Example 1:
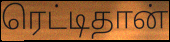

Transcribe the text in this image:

ரெட்டிதான்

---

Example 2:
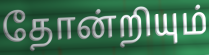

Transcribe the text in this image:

தோன்றியும்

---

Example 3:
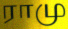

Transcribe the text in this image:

ராமு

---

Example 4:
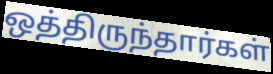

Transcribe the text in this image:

ஒத்திருந்தார்கள்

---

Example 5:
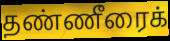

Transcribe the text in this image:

தண்ணீரைக்